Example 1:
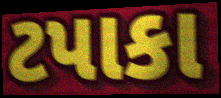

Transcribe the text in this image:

ટપાકા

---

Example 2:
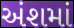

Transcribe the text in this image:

અંશમાં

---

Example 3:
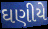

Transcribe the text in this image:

ઘણીયે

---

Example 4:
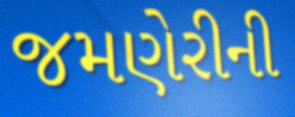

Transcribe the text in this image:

જમણેરીની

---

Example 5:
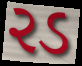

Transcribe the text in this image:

રડ